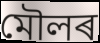
মৌলৰ